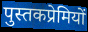
पुस्तकप्रेमियों